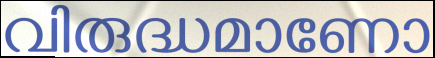
വിരുദ്ധമാണോ